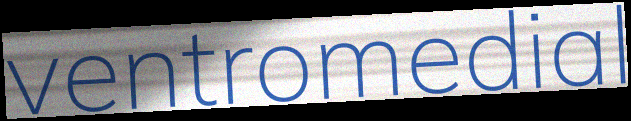
ventromedial